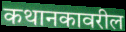
कथानकावरील